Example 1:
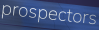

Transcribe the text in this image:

prospectors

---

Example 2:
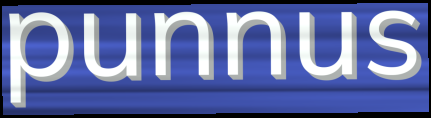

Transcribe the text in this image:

punnus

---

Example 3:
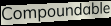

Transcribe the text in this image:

Compoundable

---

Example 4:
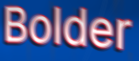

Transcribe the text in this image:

Bolder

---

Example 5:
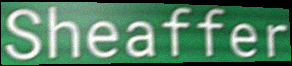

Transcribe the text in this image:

Sheaffer